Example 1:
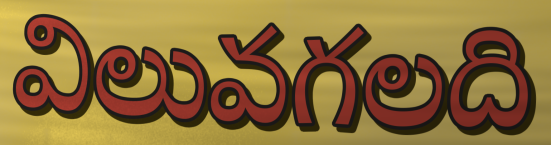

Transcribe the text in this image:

విలువగలది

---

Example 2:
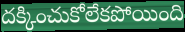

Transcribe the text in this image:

దక్కించుకోలేకపోయింది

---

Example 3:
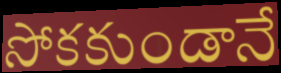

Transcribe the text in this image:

సోకకుండానే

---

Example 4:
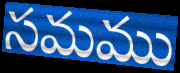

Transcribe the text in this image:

సమము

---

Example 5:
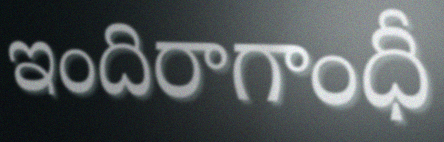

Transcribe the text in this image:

ఇందిరాగాంధీ